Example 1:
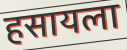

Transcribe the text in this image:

हसायला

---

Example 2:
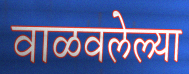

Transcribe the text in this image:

वाळवलेल्या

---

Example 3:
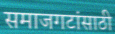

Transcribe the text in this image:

समाजगटांसाठी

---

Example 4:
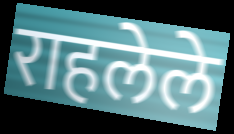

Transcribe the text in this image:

राहलेले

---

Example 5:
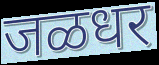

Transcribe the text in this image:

जळधर